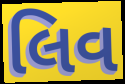
લિવ